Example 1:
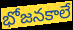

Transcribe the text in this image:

భోజనకాలే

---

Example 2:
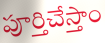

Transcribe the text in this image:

పూర్తిచేస్తాం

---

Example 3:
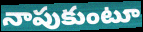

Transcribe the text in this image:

నాపుకుంటూ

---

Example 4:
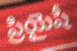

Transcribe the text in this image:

ప్రియైషీ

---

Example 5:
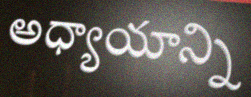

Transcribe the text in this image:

అధ్యాయాన్ని